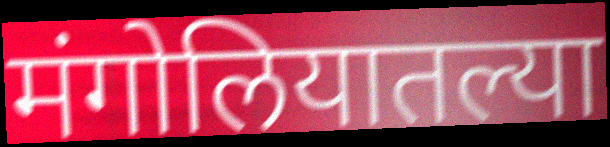
मंगोलियातल्या